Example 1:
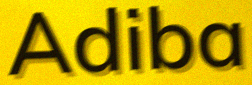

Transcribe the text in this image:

Adiba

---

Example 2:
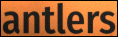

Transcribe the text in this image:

antlers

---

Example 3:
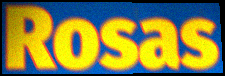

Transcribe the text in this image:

Rosas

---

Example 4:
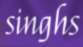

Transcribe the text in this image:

singhs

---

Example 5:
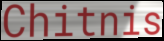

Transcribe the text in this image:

Chitnis